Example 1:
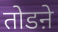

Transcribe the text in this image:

तोडऩे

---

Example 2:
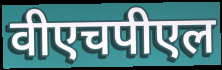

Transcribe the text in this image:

वीएचपीएल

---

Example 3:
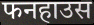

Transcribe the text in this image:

फनहाउस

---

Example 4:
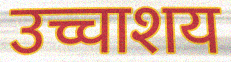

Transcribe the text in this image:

उच्चाशय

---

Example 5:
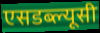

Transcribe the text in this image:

एसडब्ल्यूसी